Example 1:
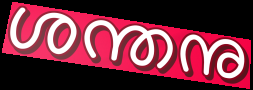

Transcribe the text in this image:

ശന്തനു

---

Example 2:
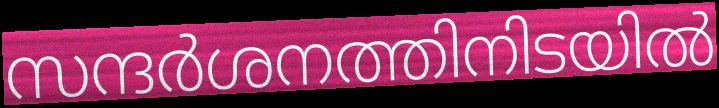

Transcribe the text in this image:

സന്ദർശനത്തിനിടയിൽ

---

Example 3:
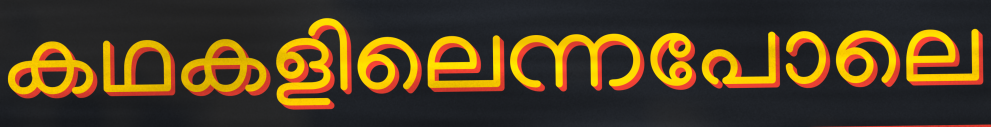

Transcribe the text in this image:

കഥകളിലെന്നപോലെ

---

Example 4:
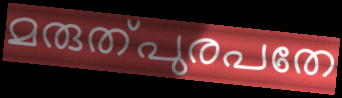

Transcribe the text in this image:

മരുത്പുരപതേ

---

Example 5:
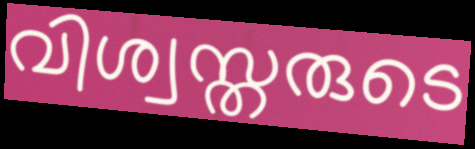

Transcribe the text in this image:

വിശ്വസ്തരുടെ